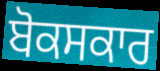
ਬੋਕਸਕਾਰ